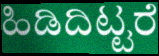
ಹಿಡಿದಿಟ್ಟರೆ